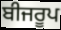
ਬੀਜਰੂਪ